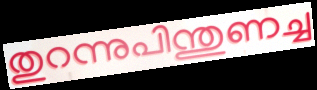
തുറന്നുപിന്തുണച്ച